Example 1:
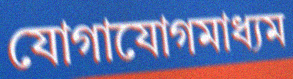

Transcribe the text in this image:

যোগাযোগমাধ্যম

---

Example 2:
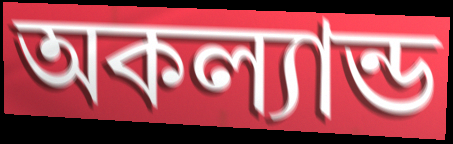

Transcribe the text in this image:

অকল্যান্ড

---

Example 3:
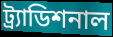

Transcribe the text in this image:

ট্র্যাডিশনাল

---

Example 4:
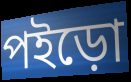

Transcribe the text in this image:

পইড়ো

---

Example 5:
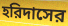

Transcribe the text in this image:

হরিদাসের